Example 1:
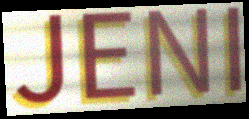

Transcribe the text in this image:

JENI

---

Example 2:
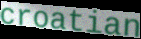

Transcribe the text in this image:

croatian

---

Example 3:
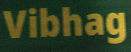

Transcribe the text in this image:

Vibhag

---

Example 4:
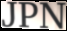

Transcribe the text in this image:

JPN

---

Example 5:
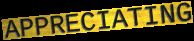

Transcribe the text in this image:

APPRECIATING